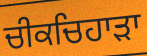
ਚੀਕਚਿਹਾੜਾ